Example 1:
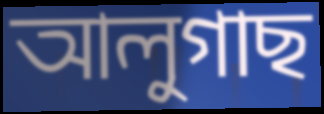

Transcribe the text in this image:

আলুগাছ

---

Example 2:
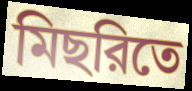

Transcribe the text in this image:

মিছরিতে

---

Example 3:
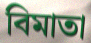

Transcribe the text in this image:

বিমাতা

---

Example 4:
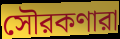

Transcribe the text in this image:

সৌরকণারা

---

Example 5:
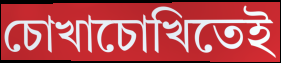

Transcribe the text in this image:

চোখাচোখিতেই